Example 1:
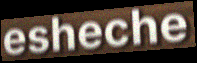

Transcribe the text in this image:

esheche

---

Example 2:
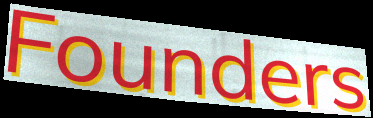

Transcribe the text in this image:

Founders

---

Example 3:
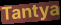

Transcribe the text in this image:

Tantya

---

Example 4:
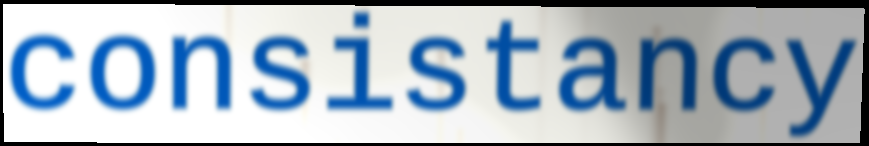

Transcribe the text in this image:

consistancy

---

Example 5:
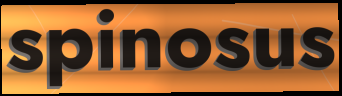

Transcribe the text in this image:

spinosus